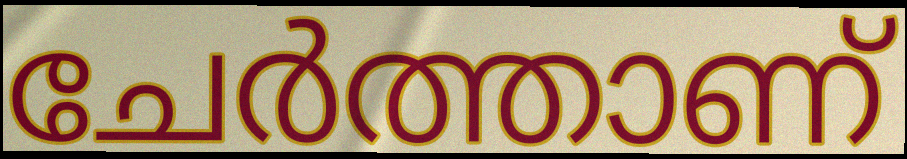
ചേർത്താണ്